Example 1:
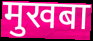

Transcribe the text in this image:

मुखबा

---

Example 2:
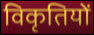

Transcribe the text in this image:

विकृतियों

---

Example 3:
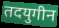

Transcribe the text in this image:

तदयुगीन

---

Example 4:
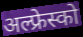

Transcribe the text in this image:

अल्फ्रेस्को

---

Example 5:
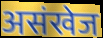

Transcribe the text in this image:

असंखेज